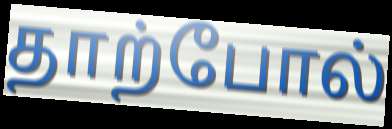
தாற்போல்